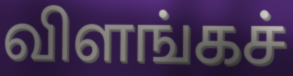
விளங்கச்